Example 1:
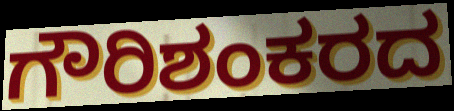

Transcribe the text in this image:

ಗೌರಿಶಂಕರದ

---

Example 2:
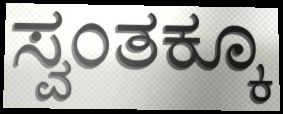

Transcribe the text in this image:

ಸ್ವಂತಕ್ಕೂ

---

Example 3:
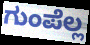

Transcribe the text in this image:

ಗುಂಪೆಲ್ಲ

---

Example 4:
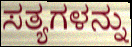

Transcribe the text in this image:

ಸತ್ಯಗಳನ್ನು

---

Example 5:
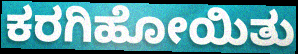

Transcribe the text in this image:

ಕರಗಿಹೋಯಿತು